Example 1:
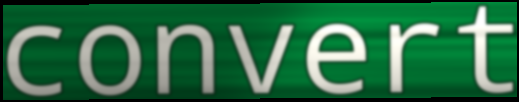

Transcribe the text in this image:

convert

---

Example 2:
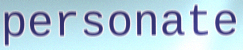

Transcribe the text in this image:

personate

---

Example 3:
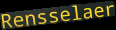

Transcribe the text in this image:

Rensselaer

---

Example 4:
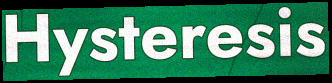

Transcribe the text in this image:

Hysteresis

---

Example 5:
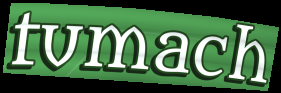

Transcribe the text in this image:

tumach